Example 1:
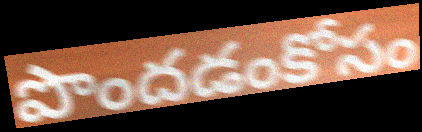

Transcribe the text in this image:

పొందడంకోసం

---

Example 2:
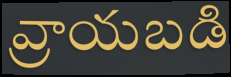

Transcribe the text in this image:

వ్రాయబడి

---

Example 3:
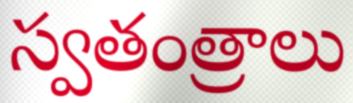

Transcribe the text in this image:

స్వతంత్రాలు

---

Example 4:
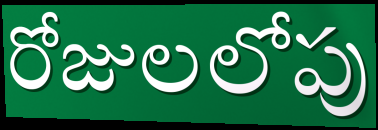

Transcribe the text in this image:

రోజులలోపు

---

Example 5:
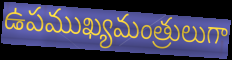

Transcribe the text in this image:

ఉపముఖ్యమంత్రులుగా